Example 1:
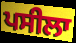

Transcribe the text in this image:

ਪਸੀਲਾ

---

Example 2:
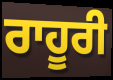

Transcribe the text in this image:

ਰਾਹੂਰੀ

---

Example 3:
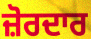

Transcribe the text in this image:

ਜ਼ੋਰਦਾਰ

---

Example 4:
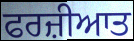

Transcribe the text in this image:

ਫਰਜ਼ੀਆਤ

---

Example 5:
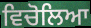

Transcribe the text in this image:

ਵਿਚੋਲਿਆ